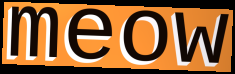
meow